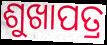
ଶୁଖାପତ୍ର